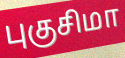
புகுசிமா